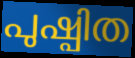
പുഷ്പിത